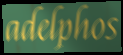
adelphos